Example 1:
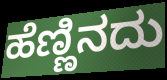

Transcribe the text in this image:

ಹೆಣ್ಣಿನದು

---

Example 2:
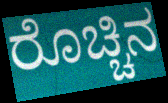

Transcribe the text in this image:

ರೊಚ್ಚಿನ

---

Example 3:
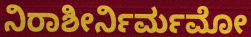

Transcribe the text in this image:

ನಿರಾಶೀರ್ನಿರ್ಮಮೋ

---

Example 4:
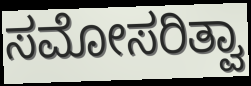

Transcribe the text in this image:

ಸಮೋಸರಿತ್ವಾ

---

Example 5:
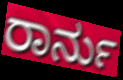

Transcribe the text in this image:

ರಾರ್ನು